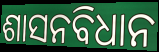
ଶାସନବିଧାନ